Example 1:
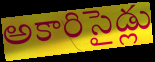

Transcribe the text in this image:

అకారిసైడ్లు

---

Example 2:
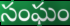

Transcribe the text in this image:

సంఘం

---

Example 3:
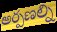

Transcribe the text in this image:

అర్పణల్ని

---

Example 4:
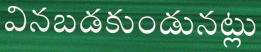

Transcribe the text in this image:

వినబడకుండునట్లు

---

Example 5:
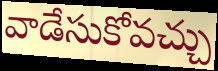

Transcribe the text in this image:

వాడేసుకోవచ్చు